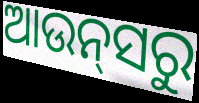
ଆଉନ୍‍ସରୁ